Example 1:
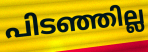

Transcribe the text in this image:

പിടഞ്ഞില്ല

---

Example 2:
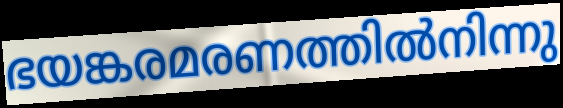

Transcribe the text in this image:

ഭയങ്കരമരണത്തിൽനിന്നു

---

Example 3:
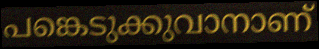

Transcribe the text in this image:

പങ്കെടുക്കുവാനാണ്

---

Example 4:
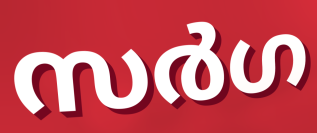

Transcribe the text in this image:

സർഗ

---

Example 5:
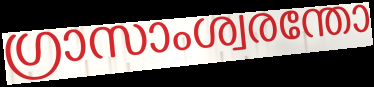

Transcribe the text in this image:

ഗ്രാസാംശ്വരന്തോ